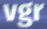
vgr